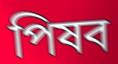
পিষব